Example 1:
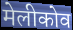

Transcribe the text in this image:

मेलीकोव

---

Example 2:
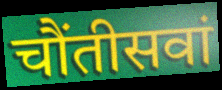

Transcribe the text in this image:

चौंतीसवां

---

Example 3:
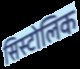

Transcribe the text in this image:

सिस्टोलिक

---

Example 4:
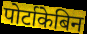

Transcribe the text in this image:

पोर्टाकेबिन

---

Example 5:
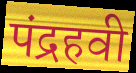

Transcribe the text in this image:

पंद्रहवी